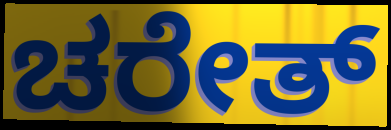
ಚರೇತ್